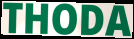
THODA